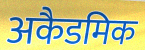
अकैडमिक